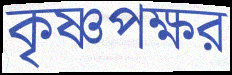
কৃষ্ণপক্ষর